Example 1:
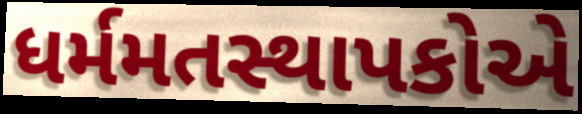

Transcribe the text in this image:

ધર્મમતસ્થાપકોએ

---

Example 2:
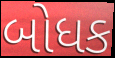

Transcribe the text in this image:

બોધક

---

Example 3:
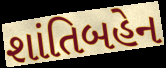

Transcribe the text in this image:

શાંતિબહેન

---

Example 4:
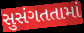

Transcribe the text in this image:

સુસંગતતામાં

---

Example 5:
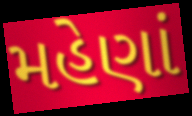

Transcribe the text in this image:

મહેણાં